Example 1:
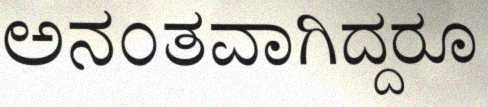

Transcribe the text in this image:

ಅನಂತವಾಗಿದ್ದರೂ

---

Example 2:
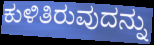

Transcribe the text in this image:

ಕುಳಿತಿರುವುದನ್ನು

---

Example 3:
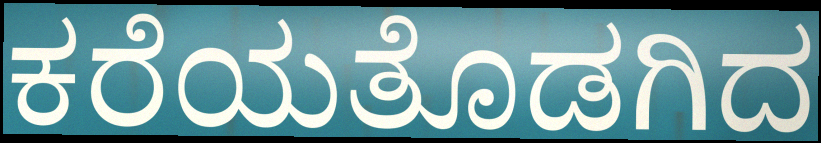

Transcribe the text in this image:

ಕರೆಯತೊಡಗಿದ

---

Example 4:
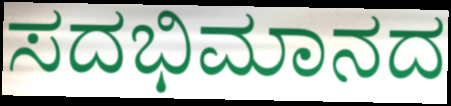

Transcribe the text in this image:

ಸದಭಿಮಾನದ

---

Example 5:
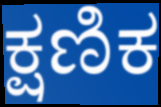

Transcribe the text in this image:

ಕ್ಷಣಿಕ